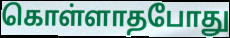
கொள்ளாதபோது